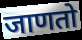
जाणतो